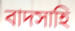
বাদসাহি